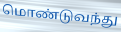
மொண்டுவந்து